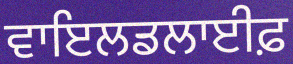
ਵਾਇਲਡਲਾਈਫ਼